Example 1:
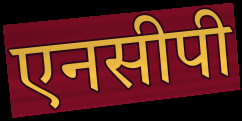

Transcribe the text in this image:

एनसीपी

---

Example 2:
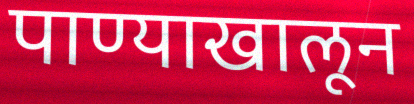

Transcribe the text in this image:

पाण्याखालून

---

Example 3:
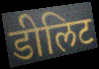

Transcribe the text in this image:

डीलिट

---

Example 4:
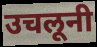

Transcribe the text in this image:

उचलूनी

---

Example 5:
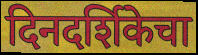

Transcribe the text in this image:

दिनदर्शिकेचा